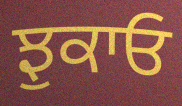
ਝੁਕਾਓ